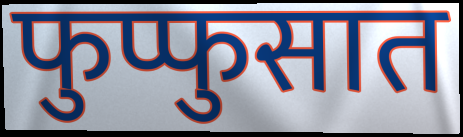
फुप्फुसात